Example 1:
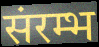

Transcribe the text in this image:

संरम्भ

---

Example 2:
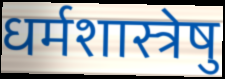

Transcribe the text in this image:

धर्मशास्त्रेषु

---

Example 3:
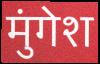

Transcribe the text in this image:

मुंगेश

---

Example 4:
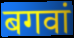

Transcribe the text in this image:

बगवां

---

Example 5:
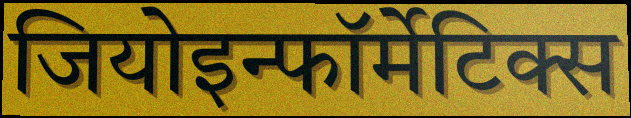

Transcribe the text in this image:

जियोइन्फॉर्मेटिक्स